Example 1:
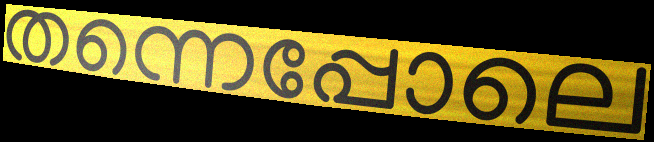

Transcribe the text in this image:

തന്നെപ്പോലെ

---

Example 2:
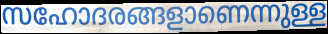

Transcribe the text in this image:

സഹോദരങ്ങളാണെന്നുള്ള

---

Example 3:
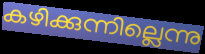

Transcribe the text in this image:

കഴിക്കുന്നില്ലെന്നു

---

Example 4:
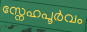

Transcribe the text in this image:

സ്നേഹപൂർവം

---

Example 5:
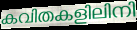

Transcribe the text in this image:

കവിതകളിലിനി